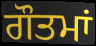
ਗੌਤਮਾਂ